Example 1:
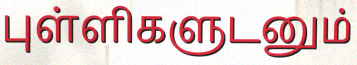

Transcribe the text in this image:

புள்ளிகளுடனும்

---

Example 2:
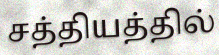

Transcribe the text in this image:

சத்தியத்தில்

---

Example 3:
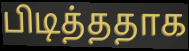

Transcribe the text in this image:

பிடித்ததாக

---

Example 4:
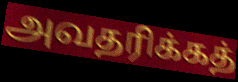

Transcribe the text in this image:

அவதரிக்கத்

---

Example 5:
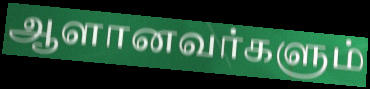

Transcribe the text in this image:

ஆளானவர்களும்